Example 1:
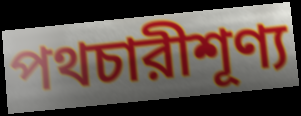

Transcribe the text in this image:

পথচারীশূণ্য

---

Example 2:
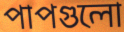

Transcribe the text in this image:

পাপগুলো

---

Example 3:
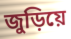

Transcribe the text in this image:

জুড়িয়ে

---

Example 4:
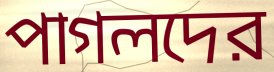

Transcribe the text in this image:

পাগলদের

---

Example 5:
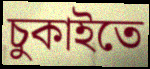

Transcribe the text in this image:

চুকাইতে